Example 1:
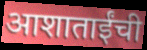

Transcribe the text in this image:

आशाताईंची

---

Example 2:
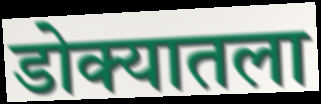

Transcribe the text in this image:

डोक्‍यातला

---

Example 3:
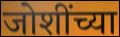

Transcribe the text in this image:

जोशींच्या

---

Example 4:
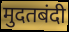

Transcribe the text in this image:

मुदतबंदी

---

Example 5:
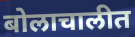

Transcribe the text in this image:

बोलाचालीत